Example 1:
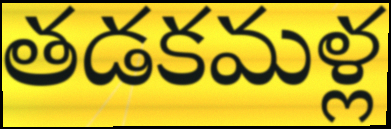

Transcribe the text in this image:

తడకమళ్ల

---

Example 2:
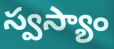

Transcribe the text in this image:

స్వస్యాం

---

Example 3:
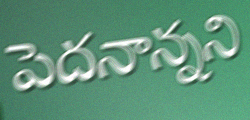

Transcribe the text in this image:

పెదనాన్నని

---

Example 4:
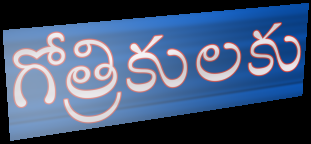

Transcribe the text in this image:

గోత్రికులకు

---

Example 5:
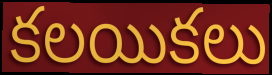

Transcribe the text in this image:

కలయికలు